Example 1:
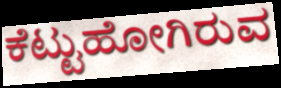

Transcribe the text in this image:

ಕೆಟ್ಟುಹೋಗಿರುವ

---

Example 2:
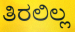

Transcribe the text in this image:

ತಿರಲಿಲ್ಲ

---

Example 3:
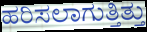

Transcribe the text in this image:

ಹರಿಸಲಾಗುತ್ತಿತ್ತು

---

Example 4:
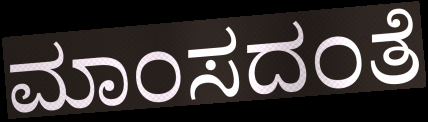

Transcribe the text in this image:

ಮಾಂಸದಂತೆ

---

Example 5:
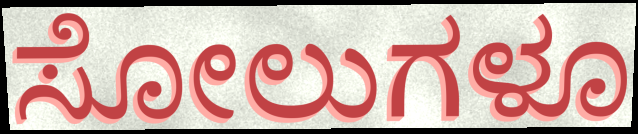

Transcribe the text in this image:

ಸೋಲುಗಳೂ